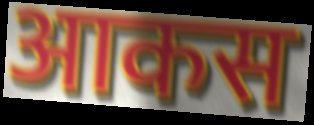
आकस